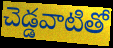
చెడ్డవాటితో